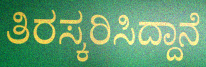
ತಿರಸ್ಕರಿಸಿದ್ದಾನೆ